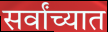
सर्वांच्यात